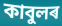
কাবুলৰ